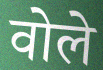
वोले